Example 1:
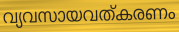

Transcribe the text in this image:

വ്യവസായവത്കരണം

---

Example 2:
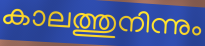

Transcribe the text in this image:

കാലത്തുനിന്നും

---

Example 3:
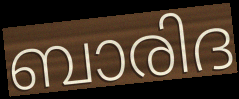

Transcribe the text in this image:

ബാരിദ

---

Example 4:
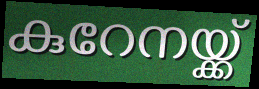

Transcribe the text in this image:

കുറേനയ്ക്ക്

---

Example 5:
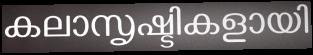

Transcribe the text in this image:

കലാസൃഷ്ടികളായി